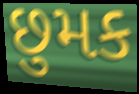
છુમક